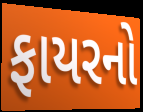
ફાયરનો